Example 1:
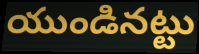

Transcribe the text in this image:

యుండినట్టు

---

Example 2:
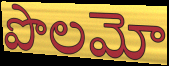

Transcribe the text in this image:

పొలమో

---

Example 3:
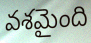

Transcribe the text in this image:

వశమైంది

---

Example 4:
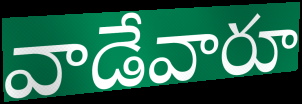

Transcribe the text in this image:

వాడేవారూ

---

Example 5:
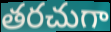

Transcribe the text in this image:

తరచుగా